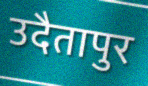
उदैतापुर